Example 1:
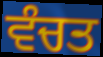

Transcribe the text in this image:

ਵੰਚਤ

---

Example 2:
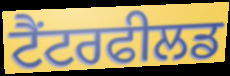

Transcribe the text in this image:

ਟੈਂਟਰਫੀਲਡ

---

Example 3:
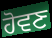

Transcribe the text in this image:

ਹੋਵਣ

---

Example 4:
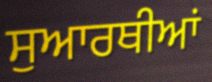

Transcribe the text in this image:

ਸੁਆਰਥੀਆਂ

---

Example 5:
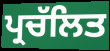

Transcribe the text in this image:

ਪ੍ਰਚੱਲਿਤ